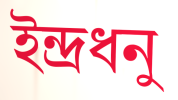
ইন্দ্রধনু